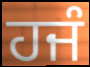
ਹਜੰ